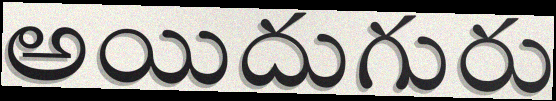
అయిదుగురు